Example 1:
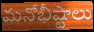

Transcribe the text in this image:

మనోభీష్టాలు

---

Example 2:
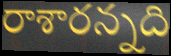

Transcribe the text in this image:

రాశారన్నది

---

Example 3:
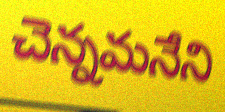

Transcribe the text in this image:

చెన్నమనేని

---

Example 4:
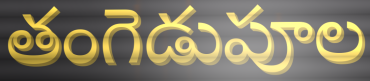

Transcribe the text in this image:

తంగెడుపూల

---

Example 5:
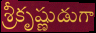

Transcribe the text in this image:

శ్రీకృష్ణుడుగా